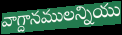
వాగ్దానములన్నియు